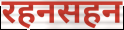
रहनसहन